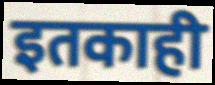
इतकाही